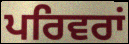
ਪਰਿਵਰਾਂ